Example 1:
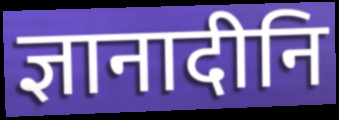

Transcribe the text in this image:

ज्ञानादीनि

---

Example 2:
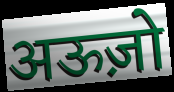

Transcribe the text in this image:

अऊज़ो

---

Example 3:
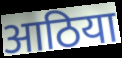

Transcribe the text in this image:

आठिया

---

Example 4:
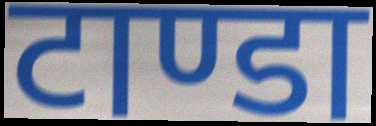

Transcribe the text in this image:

टाण्डा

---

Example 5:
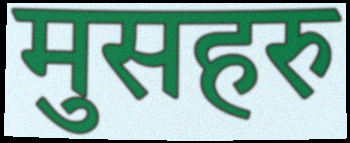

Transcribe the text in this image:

मुसहरु